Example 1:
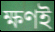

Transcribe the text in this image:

ক্ষণই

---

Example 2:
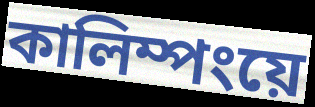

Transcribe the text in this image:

কালিম্পংয়ে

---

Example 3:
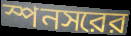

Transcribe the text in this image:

স্পনসরের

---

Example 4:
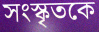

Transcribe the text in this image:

সংস্কৃতকে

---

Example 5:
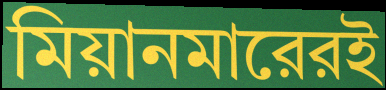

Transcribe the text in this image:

মিয়ানমারেরই